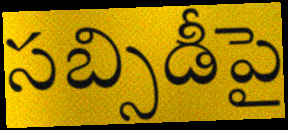
సబ్సిడీపై